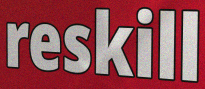
reskill